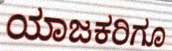
ಯಾಜಕರಿಗೂ